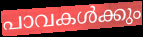
പാവകൾക്കും